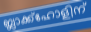
ബ്ലാക്ക്ഹോളിന്